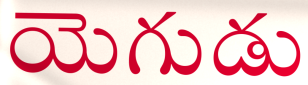
యెగుడు